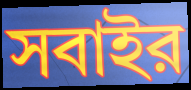
সবাইর